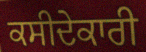
ਕਸੀਦੇਕਾਰੀ